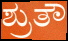
ಶ್ರುತೌ